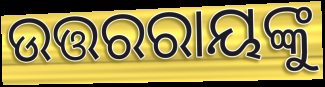
ଉତ୍ତରରାୟଙ୍କୁ